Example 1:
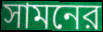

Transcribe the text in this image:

সামনের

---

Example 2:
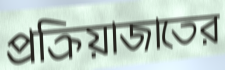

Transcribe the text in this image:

প্রক্রিয়াজাতের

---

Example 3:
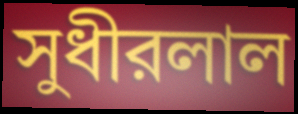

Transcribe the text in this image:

সুধীরলাল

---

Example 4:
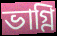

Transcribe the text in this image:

ভাগ্নি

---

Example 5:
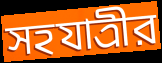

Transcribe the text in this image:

সহযাত্রীর